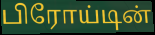
பிரோய்டின்